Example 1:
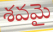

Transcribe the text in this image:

శవమై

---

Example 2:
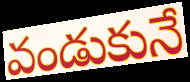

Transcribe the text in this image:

వండుకునే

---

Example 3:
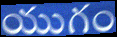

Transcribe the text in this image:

యుగం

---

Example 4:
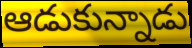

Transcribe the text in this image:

ఆడుకున్నాడు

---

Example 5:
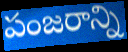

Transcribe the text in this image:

పంజరాన్ని